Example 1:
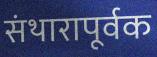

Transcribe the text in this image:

संथारापूर्वक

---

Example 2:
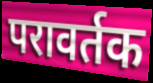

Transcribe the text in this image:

परावर्तक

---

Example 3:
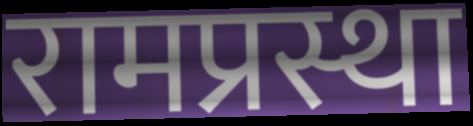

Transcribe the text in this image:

रामप्रस्था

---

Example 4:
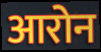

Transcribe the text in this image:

आरोन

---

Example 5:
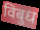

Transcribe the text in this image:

विबुध